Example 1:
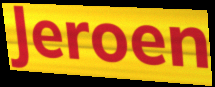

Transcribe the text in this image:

Jeroen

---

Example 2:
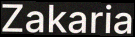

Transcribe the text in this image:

Zakaria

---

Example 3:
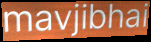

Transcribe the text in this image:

mavjibhai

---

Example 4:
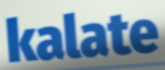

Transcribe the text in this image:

kalate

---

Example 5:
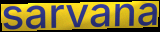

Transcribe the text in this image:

sarvana